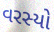
વરસ્યો